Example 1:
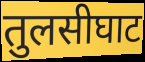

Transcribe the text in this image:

तुलसीघाट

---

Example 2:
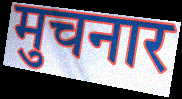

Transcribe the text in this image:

मुचनार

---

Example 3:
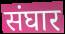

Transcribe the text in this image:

संघार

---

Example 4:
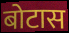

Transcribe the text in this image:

बोटास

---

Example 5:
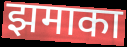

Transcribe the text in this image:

झमाका